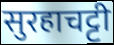
सुरहाचट्टी